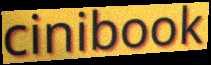
cinibook